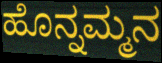
ಹೊನ್ನಮ್ಮನ